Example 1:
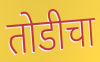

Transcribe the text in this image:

तोडीचा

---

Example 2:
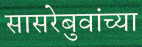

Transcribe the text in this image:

सासरेबुवांच्या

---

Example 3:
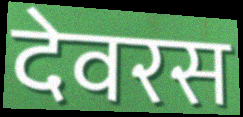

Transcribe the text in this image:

देवरस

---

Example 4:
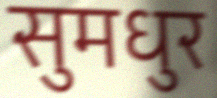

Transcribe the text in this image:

सुमधुर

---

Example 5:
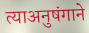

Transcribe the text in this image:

त्याअनुषंगाने